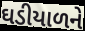
ઘડીયાળને